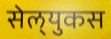
सेल्युकस